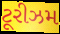
ટૂરીઝમ